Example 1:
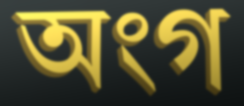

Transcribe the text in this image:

অংগ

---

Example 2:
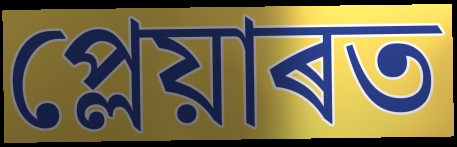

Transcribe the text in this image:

প্লেয়াৰত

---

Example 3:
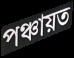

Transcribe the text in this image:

পঞ্চায়ত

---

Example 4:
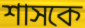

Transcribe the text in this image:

শাসকে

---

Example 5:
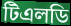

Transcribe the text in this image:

টিএলডি